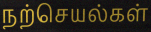
நற்செயல்கள்